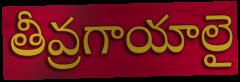
తీవ్రగాయాలై